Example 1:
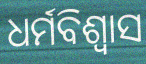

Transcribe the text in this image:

ଧର୍ମବିଶ୍ୱାସ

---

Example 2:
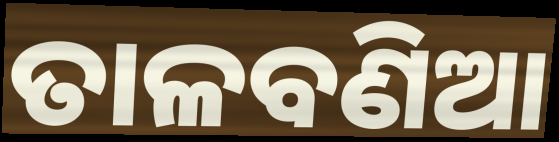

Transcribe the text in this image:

ତାଳବଣିଆ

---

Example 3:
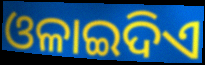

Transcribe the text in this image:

ଓଳାଇଦିଏ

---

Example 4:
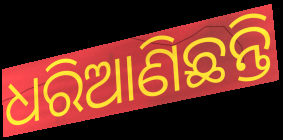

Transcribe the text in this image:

ଧରିଆଣିଛନ୍ତି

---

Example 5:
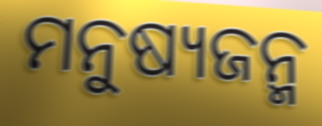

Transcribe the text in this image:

ମନୁଷ୍ୟଜନ୍ମ